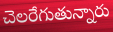
చెలరేగుతున్నారు